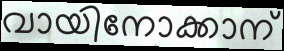
വായിനോക്കാന്